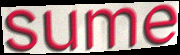
sume